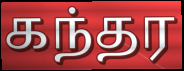
கந்தர